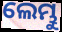
ଲେମ୍ଭୁ